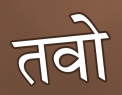
तवो